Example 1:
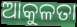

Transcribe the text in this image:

ଆକୁଳତା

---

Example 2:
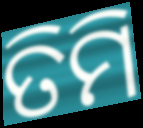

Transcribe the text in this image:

ତିମି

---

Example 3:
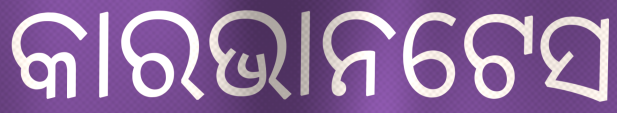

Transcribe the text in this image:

କାରଭାନଟେସ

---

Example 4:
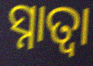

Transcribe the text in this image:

ସ୍ନାତ୍ବା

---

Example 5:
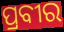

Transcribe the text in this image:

ପ୍ରବୀର